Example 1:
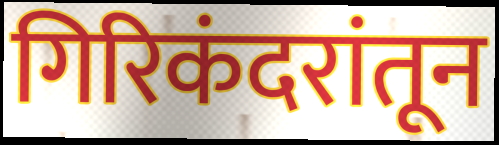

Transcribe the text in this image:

गिरिकंदरांतून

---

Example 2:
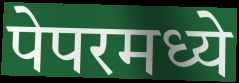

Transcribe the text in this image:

पेपरमध्ये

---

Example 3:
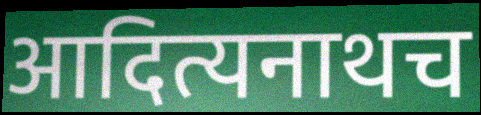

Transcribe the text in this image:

आदित्यनाथच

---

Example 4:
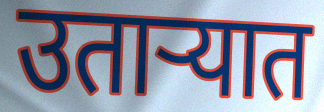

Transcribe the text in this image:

उताऱ्यात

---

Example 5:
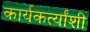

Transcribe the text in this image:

कार्यकर्त्यांशी